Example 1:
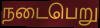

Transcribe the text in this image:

நடைபெறு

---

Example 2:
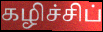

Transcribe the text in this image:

கழிச்சிப்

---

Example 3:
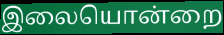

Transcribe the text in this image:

இலையொன்றை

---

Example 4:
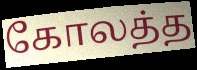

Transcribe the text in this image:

கோலத்த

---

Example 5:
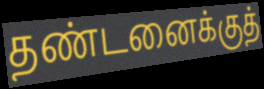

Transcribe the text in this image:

தண்டனைக்குத்